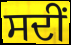
ਸਦੀਂ